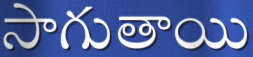
సాగుతాయి